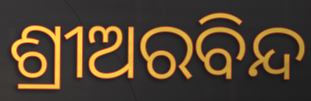
ଶ୍ରୀଅରବିନ୍ଦ